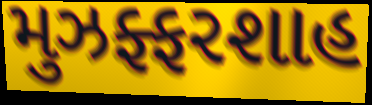
મુઝફ્ફરશાહ